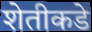
शेतीकडे